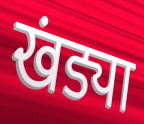
खंड्या